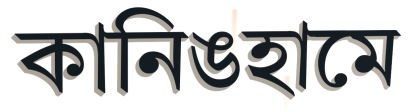
কানিঙহামে